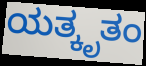
ಯತ್ಕೃತಂ